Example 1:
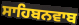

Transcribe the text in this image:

ਸਾਹਿਬਨਵਾਬ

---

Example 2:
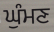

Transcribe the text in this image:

ਘੁੰਮਣ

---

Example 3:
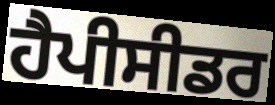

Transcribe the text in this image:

ਹੈਪੀਸੀਡਰ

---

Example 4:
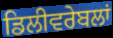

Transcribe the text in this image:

ਡਿਲੀਵਰੇਬਲਾਂ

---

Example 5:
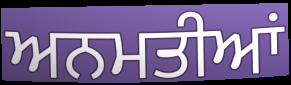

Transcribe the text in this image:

ਅਨਮਤੀਆਂ